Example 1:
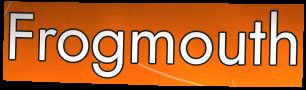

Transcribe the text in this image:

Frogmouth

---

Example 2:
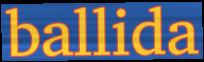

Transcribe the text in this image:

ballida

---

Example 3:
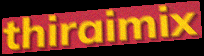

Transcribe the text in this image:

thiraimix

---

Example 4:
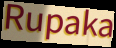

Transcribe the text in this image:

Rupaka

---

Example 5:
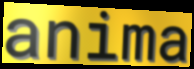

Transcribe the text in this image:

anima